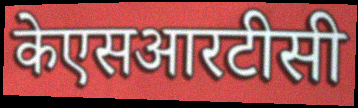
केएसआरटीसी